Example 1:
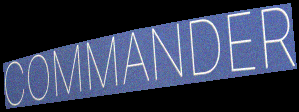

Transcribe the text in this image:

COMMANDER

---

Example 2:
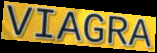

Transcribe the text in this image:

VIAGRA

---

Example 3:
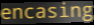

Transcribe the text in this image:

encasing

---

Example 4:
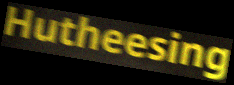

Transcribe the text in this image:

Hutheesing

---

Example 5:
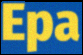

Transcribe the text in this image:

Epa